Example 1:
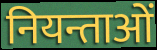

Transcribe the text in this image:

नियन्ताओं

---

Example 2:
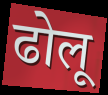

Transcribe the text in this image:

ढोलू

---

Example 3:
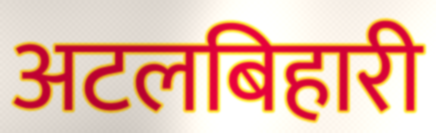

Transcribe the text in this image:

अटलबिहारी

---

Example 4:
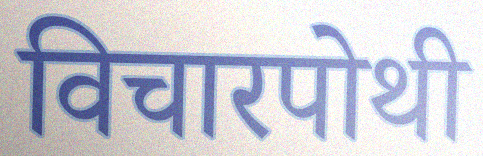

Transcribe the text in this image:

विचारपोथी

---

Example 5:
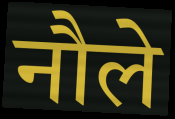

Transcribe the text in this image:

नौले